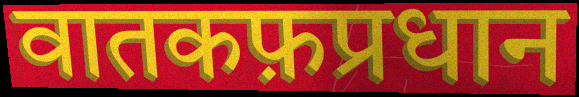
वातकफ़प्रधान